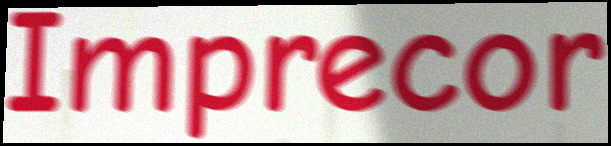
Imprecor